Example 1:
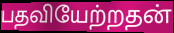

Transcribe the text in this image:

பதவியேற்றதன்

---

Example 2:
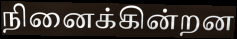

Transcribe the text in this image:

நினைக்கின்றன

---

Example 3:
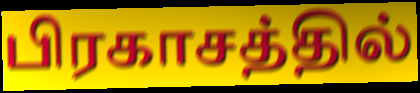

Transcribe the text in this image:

பிரகாசத்தில்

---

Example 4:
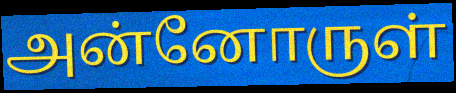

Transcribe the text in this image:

அன்னோருள்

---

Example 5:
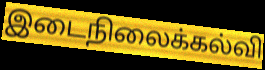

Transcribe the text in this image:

இடைநிலைக்கல்வி